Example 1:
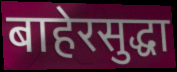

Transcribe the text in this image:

बाहेरसुद्धा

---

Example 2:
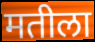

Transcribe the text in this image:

मतीला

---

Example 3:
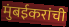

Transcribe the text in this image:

मुंबईकरांची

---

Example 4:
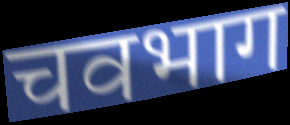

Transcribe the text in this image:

चवभाग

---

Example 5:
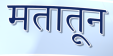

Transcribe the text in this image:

मतातून